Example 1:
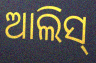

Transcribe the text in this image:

ଆଲିସ୍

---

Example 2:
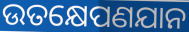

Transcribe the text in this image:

ଉତକ୍ଷେପଣଯାନ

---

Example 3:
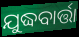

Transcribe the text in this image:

ଯୁଦ୍ଧବାର୍ତ୍ତା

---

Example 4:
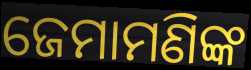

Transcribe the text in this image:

ଜେମାମଣିଙ୍କ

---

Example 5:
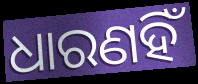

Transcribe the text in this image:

ଧାରଣହିଁ